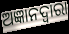
ଅଜ୍ଞାନଦ୍ଵାରା